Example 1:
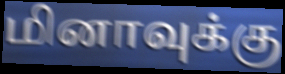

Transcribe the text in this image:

மினாவுக்கு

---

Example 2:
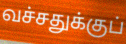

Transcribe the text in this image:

வச்சதுக்குப்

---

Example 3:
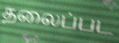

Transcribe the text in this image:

தலைப்பட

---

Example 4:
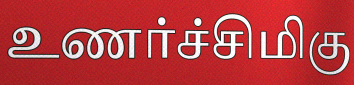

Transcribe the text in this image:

உணர்ச்சிமிகு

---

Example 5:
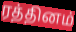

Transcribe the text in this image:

ரத்தினம்